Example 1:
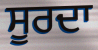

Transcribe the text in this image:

ਸੂਰਦਾ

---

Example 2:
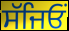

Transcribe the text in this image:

ਸੱਜਿਓਂ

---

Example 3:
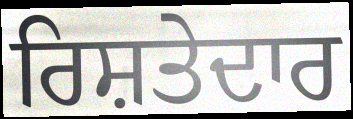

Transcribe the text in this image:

ਰਿਸ਼ਤੇਦਾਰ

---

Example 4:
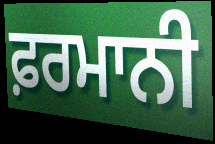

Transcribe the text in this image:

ਫ਼ਰਮਾਨੀ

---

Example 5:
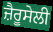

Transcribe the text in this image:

ਜ਼ੈਰੂਸੇਲੀ